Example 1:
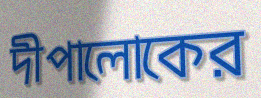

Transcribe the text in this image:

দীপালোকের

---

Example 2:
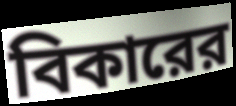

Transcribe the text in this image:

বিকারের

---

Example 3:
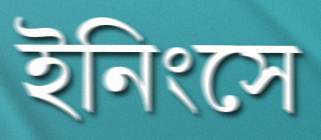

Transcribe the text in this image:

ইনিংসে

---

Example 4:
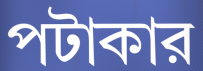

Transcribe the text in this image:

পটাকার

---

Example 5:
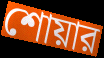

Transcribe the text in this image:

শোয়ার